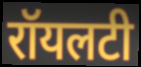
रॉयलटी